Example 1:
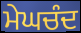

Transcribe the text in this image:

ਮੇਘਚੰਦ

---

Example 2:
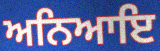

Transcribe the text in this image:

ਅਨਿਆਇ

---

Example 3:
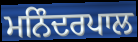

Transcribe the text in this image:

ਮਨਿੰਦਰਪਾਲ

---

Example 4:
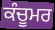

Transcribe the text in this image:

ਕੰਚੂਮਰ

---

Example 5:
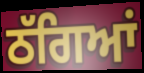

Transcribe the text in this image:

ਠੱਗਿਆਂ